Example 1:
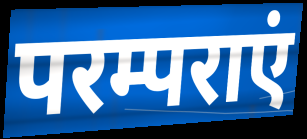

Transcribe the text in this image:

परम्पराएं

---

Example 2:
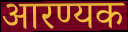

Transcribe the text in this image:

आरण्यक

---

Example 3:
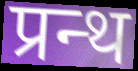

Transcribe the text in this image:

प्रन्थ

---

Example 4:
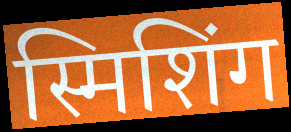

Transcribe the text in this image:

स्मिशिंग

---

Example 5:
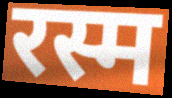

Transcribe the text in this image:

रस्म